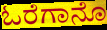
ಓರೆಗಾನೊ